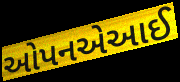
ઓપનએઆઈ